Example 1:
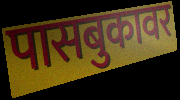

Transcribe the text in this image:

पासबुकावर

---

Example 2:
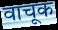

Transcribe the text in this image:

वाचूक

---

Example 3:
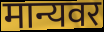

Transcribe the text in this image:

मान्यवर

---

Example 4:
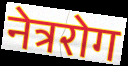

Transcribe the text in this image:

नेत्ररोग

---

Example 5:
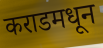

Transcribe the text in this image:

कराडमधून